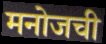
मनोजची